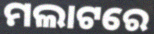
ମଲାଟରେ